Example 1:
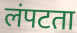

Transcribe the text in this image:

लंपटता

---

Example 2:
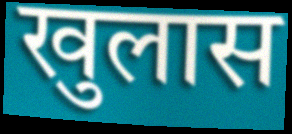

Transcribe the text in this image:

खुलास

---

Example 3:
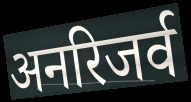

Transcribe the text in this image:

अनरिजर्व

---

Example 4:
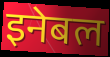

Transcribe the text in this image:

इनेबल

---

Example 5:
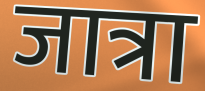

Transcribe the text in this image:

जात्रा